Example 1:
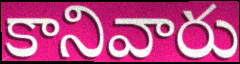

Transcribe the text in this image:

కానివారు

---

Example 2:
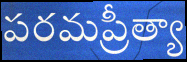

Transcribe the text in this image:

పరమప్రీత్యా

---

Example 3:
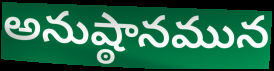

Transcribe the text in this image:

అనుష్ఠానమున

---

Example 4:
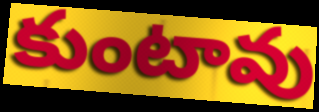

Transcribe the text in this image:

కుంటావు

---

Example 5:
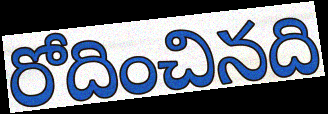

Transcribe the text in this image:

రోదించినది